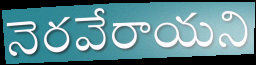
నెరవేరాయని